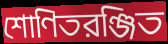
শোণিতরঞ্জিত